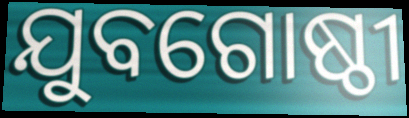
ଯୁବଗୋଷ୍ଠୀ